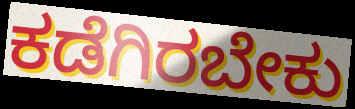
ಕಡೆಗಿರಬೇಕು